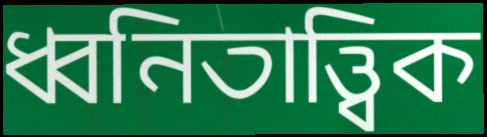
ধ্বনিতাত্ত্বিক